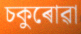
চকুৰোৱা